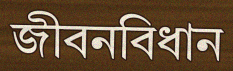
জীবনবিধান